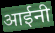
आईनी